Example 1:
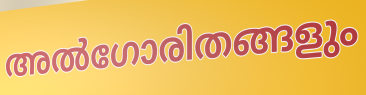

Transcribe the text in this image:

അൽഗോരിതങ്ങളും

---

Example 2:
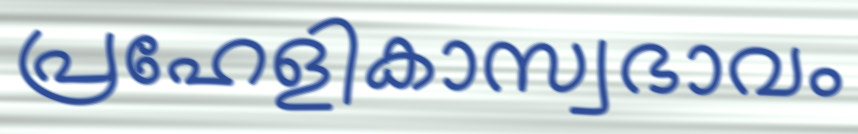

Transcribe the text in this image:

പ്രഹേളികാസ്വഭാവം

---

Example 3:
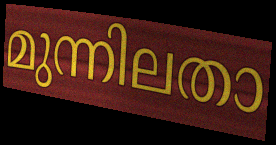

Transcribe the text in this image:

മുന്നിലതാ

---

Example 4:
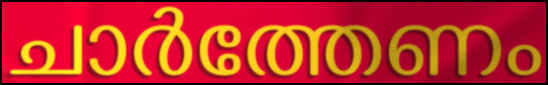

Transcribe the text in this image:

ചാർത്തേണം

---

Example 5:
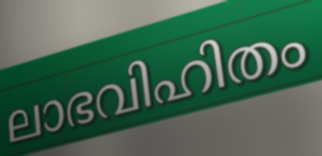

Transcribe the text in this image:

ലാഭവിഹിതം